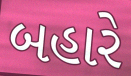
બહારે